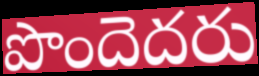
పొందెదరు